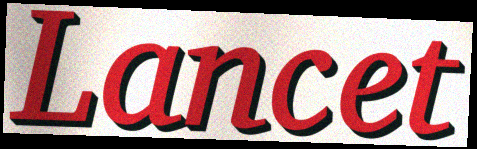
Lancet